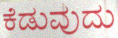
ಕೆಡುವುದು